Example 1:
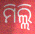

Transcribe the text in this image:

ମିଲ୍ଲି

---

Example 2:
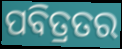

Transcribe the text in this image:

ପବିତ୍ରତର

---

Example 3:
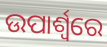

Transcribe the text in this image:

ଉପାର୍ଶ୍ଵରେ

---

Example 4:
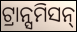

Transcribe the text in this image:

ଟ୍ରାନ୍ସମିସନ୍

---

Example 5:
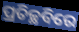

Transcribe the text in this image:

ପ୍ରତିଚ୍ଛବିରେ